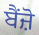
ਬੈਂਜ਼ੋ